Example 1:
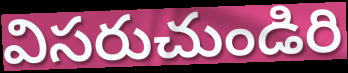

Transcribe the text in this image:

విసరుచుండిరి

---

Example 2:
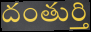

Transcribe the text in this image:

దంతుర్తి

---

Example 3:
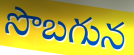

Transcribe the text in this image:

సొబగున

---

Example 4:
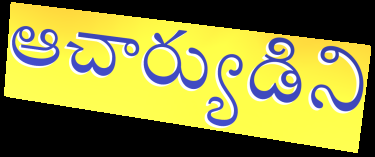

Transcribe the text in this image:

ఆచార్యుడిని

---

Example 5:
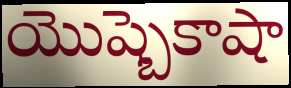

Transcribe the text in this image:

యొష్బెకాషా